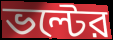
ভল্টের